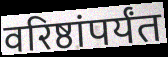
वरिष्ठांपर्यंत